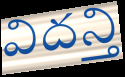
విదన్తి